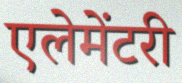
एलेमेंटरी